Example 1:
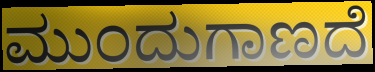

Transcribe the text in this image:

ಮುಂದುಗಾಣದೆ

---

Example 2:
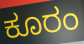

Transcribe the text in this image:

ಕೂರಂ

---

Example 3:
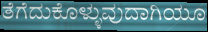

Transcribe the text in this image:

ತೆಗೆದುಕೊಳ್ಳುವುದಾಗಿಯೂ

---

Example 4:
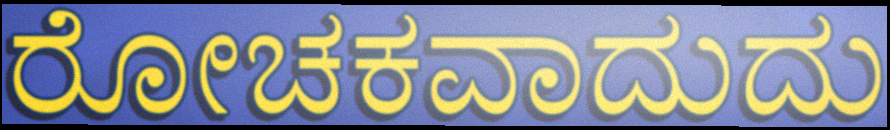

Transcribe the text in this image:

ರೋಚಕವಾದುದು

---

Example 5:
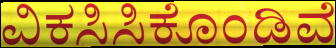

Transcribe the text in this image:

ವಿಕಸಿಸಿಕೊಂಡಿವೆ